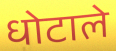
धोटाले